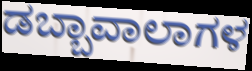
ಡಬ್ಬಾವಾಲಾಗಳ